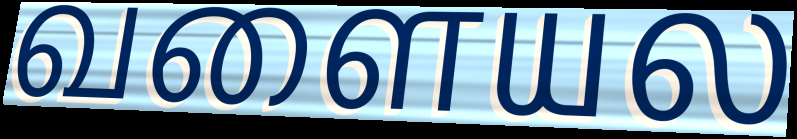
வளையல